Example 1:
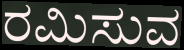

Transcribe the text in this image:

ರಮಿಸುವ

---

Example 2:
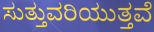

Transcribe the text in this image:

ಸುತ್ತುವರಿಯುತ್ತವೆ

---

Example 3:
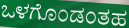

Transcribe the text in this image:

ಒಳಗೊಂಡಂತಹ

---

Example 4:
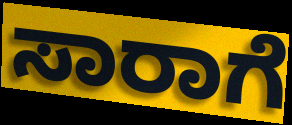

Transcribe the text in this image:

ಸಾರಾಗೆ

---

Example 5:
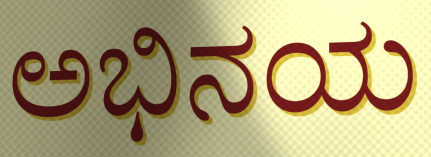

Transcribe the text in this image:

ಅಭಿನಯ